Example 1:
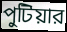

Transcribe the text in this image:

পুটিয়ার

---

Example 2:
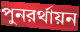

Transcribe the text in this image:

পুনরর্থায়ন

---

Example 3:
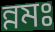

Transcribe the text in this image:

ন্নমঃ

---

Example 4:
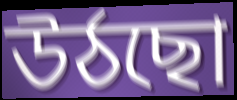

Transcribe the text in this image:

উঠছো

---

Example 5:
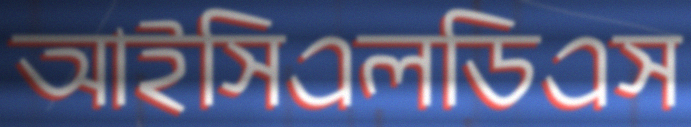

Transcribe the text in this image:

আইসিএলডিএস